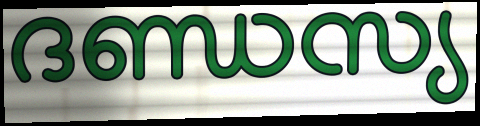
ദണ്ഡസ്യ